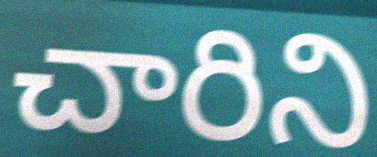
చారిని